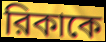
রিকাকে